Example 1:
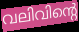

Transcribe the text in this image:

വലിവിന്റെ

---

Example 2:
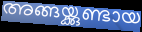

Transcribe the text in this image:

അങ്ങയ്ക്കുണ്ടായ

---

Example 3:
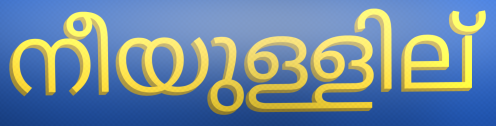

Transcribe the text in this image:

നീയുള്ളില്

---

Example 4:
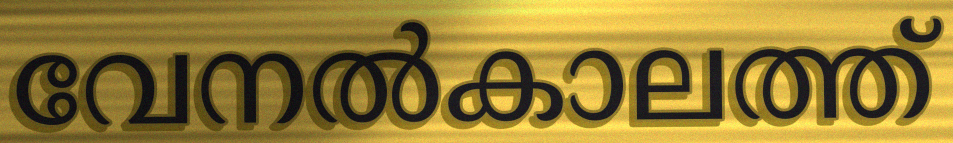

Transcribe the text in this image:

വേനൽകാലത്ത്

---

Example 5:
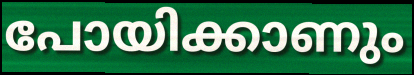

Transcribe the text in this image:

പോയിക്കാണും